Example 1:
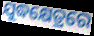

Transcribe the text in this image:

ଯୁଦ୍ଧକ୍ଷେତ୍ରରେ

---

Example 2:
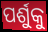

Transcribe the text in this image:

ପର୍ଶୁକୁ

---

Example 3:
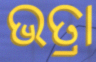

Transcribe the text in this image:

ଭତ୍ରା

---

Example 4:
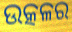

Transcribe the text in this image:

ଉତ୍କଳର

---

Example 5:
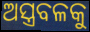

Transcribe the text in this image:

ଅସ୍ତ୍ରବଳକୁ